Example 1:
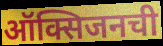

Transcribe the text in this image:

ऑक्सिजनची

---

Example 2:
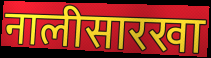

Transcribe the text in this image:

नालीसारखा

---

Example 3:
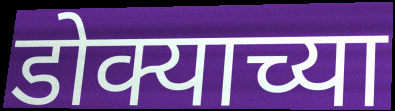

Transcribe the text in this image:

डोक्याच्या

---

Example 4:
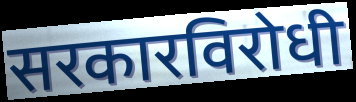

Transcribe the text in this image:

सरकारविरोधी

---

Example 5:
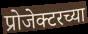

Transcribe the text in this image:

प्रोजेक्टरच्या